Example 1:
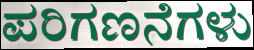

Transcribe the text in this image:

ಪರಿಗಣನೆಗಳು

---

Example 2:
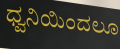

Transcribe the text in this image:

ಧ್ವನಿಯಿಂದಲೂ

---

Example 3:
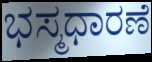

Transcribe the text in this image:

ಭಸ್ಮಧಾರಣೆ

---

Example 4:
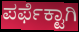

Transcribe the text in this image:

ಪರ್ಫೆಕ್ಟಾಗಿ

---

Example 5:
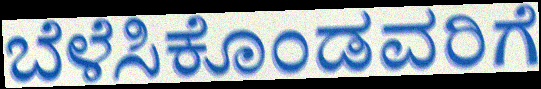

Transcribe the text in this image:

ಬೆಳೆಸಿಕೊಂಡವರಿಗೆ